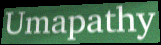
Umapathy